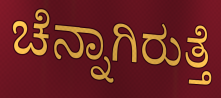
ಚೆನ್ನಾಗಿರುತ್ತೆ